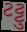
ટટ્ટુ